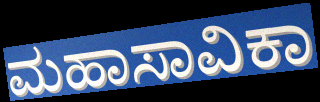
ಮಹಾಸಾವಿಕಾ